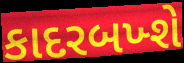
કાદરબખ્શે